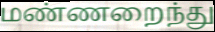
மண்ணறைந்து